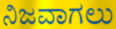
ನಿಜವಾಗಲು